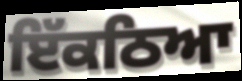
ਇੱਕਠਿਆ